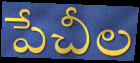
పేచీల